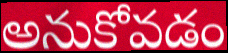
అనుకోవడం